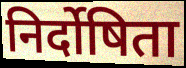
निर्दोषिता